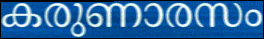
കരുണാരസം